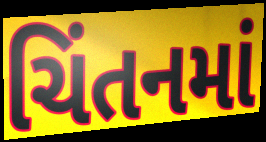
ચિંતનમાં